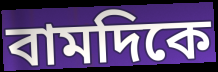
বামদিকে